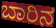
ಬಾರಿನ